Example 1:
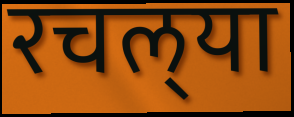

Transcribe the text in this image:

रचल्या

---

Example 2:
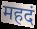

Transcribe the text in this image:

महदं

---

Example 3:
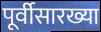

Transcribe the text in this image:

पूर्वीसारख्या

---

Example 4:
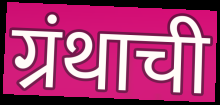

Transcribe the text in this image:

ग्रंथाची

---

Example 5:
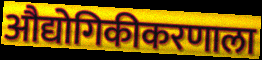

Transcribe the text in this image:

औद्योगिकीकरणाला